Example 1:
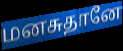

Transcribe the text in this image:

மனசுதானே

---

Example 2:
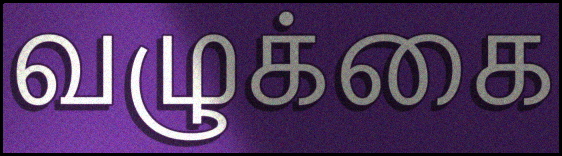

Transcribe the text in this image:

வழுக்கை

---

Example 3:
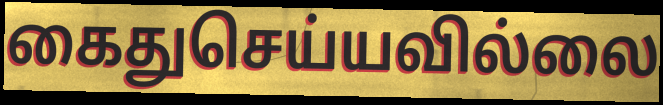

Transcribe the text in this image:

கைதுசெய்யவில்லை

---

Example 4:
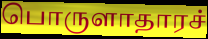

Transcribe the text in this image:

பொருளாதாரச்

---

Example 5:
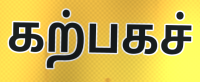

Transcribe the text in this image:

கற்பகச்